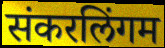
संकरलिंगम